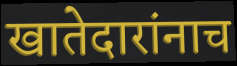
खातेदारांनाच